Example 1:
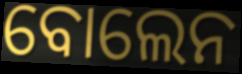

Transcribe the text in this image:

ବୋଲେନ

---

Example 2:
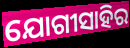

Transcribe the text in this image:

ଯୋଗୀସାହିର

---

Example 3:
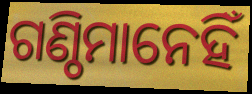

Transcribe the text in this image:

ଗଣ୍ଠିମାନେହିଁ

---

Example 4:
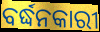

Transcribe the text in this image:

ବର୍ଦ୍ଧନକାରୀ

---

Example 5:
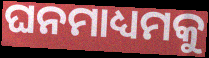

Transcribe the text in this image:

ଘନମାଧ୍ୟମକୁ